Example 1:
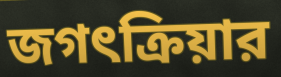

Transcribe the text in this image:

জগৎক্রিয়ার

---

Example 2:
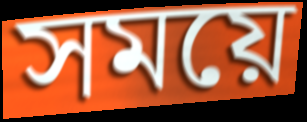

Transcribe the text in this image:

সময়ে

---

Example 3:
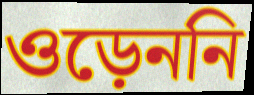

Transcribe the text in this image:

ওড়েননি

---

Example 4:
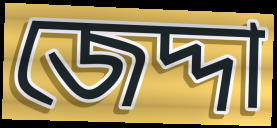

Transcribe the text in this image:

জেদ্দা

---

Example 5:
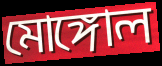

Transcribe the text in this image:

মোঙ্গোল